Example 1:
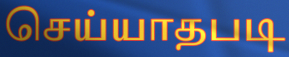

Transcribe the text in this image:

செய்யாதபடி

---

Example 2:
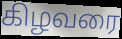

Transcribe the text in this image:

கிழவரை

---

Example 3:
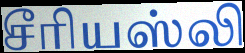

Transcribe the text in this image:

சீரியஸ்லி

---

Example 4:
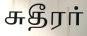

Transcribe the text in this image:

சுதீரர்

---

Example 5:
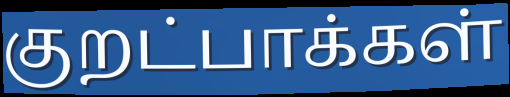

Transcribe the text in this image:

குறட்பாக்கள்